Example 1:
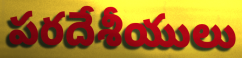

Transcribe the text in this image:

పరదేశీయులు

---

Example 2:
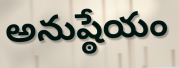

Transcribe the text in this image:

అనుష్ఠేయం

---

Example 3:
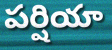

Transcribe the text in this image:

పర్షియా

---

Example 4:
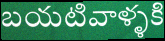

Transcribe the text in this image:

బయటివాళ్ళకి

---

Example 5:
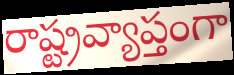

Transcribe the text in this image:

రాష్ట్రవ్యాప్తంగా